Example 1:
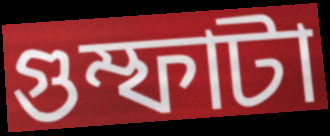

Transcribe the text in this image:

গুম্ফাটা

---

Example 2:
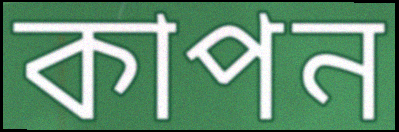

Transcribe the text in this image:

কাপন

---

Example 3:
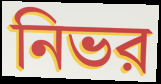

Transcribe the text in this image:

নিভর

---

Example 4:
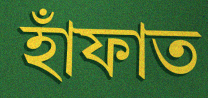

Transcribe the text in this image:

হাঁফাত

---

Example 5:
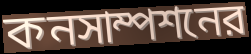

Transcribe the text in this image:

কনসাম্পশনের